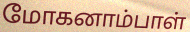
மோகனாம்பாள்